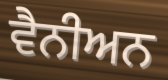
ਵੈਨੀਅਨ